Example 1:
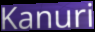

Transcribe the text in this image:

Kanuri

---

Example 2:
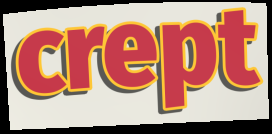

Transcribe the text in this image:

crept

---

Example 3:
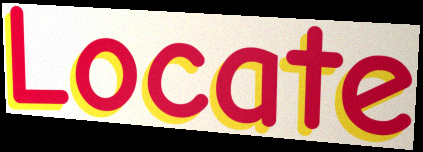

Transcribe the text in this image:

Locate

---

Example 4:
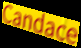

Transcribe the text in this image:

Candace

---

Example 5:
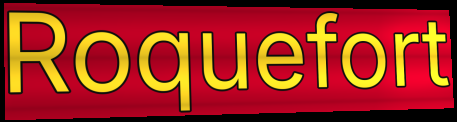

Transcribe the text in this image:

Roquefort